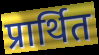
प्रार्थित